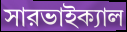
সারভাইক্যাল